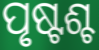
ପୃଷ୍ଟଶ୍ଚ